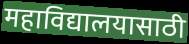
महाविद्यालयासाठी